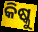
କିଷ୍କୁ